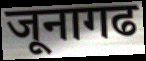
जूनागढ